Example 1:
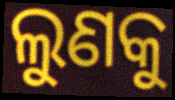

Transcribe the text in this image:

ଲୁଣକୁ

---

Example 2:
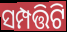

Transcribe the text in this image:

ସମ୍ପତ୍ତିଟି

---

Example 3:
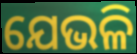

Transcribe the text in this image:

ଯେଭଳି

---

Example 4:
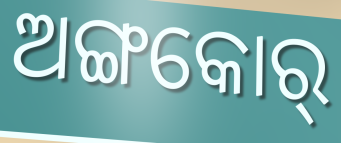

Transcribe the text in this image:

ଅଙ୍ଗକୋର୍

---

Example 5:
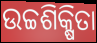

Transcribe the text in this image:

ଉଚ୍ଚଶିକ୍ଷିତା